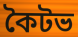
কৈটভ